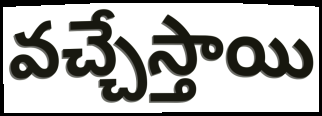
వచ్చేస్తాయి